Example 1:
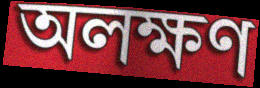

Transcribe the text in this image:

অলক্ষণ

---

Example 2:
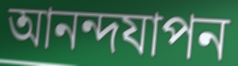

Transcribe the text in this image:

আনন্দযাপন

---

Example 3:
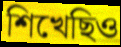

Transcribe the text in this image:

শিখেছিও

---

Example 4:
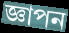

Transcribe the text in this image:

জ্ঞাপন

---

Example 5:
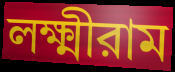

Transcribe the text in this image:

লক্ষ্মীরাম